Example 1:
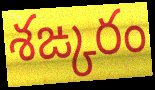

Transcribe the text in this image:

శఙ్కరం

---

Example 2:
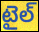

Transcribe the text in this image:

టైల్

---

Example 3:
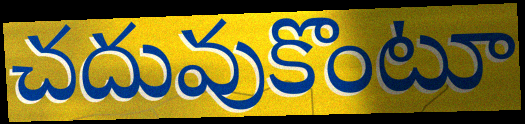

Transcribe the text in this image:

చదువుకొంటూ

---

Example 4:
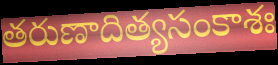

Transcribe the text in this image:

తరుణాదిత్యసంకాశః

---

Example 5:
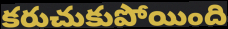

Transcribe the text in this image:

కరుచుకుపోయింది